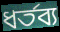
ধর্তব্য